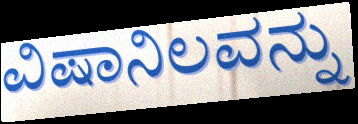
ವಿಷಾನಿಲವನ್ನು